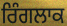
ਰਿੰਗਲਾਕ